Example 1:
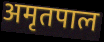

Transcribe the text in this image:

अमृतपाल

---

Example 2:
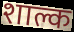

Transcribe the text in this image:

शाल्क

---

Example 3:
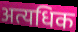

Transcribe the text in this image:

अत्यधिक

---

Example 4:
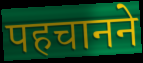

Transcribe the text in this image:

पहचानने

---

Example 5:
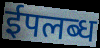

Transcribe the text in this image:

ईपलब्ध